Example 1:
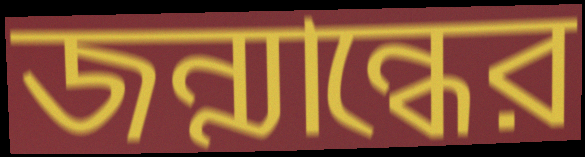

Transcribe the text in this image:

জন্মান্ধের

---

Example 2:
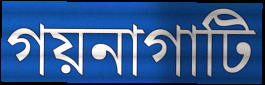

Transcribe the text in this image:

গয়নাগাটি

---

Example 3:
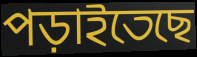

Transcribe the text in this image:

পড়াইতেছে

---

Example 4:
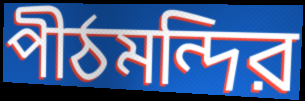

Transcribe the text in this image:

পীঠমন্দির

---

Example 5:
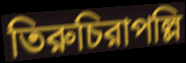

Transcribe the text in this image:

তিরুচিরাপল্লি